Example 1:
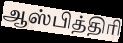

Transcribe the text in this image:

ஆஸ்பித்திரி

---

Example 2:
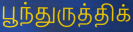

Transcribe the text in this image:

பூந்துருத்திக்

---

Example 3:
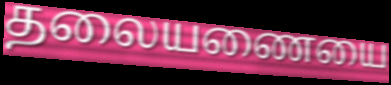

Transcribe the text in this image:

தலையணையை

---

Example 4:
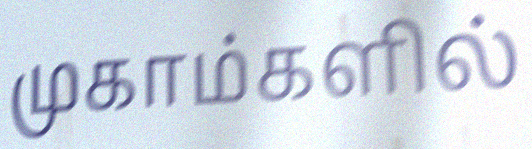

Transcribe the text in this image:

முகாம்களில்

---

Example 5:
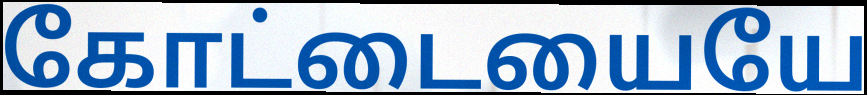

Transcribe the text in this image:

கோட்டையையே